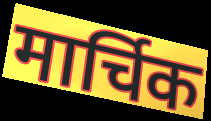
मार्चिक